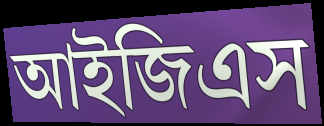
আইজিএস